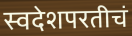
स्वदेशपरतीचं